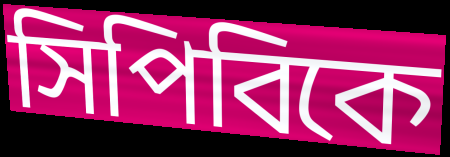
সিপিবিকে